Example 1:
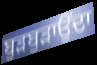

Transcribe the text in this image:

ਬੁੜਬੁੜਾਉਂਦਾ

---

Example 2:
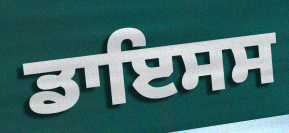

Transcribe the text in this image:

ਡਾਇਸਸ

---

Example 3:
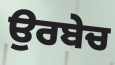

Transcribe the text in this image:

ਉਰਬੇਚ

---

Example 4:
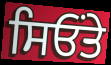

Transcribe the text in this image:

ਸਿਓਂਤੇ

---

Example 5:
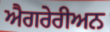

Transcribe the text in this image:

ਐਗਰੇਰੀਅਨ